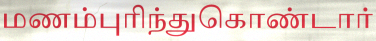
மணம்புரிந்துகொண்டார்